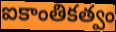
ఐకాంతికత్వం